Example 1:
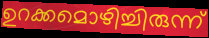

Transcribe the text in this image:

ഉറക്കമൊഴിച്ചിരുന്ന്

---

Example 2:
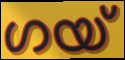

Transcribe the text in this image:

ഗയ്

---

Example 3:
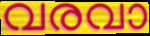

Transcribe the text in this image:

വരവാ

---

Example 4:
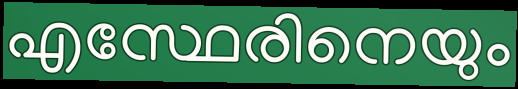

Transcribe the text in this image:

എസ്ഥേരിനെയും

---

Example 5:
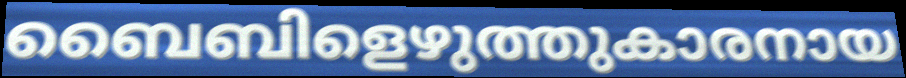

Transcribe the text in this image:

ബൈബിളെഴുത്തുകാരനായ